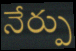
నేర్పు